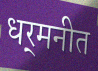
धर्मनीत